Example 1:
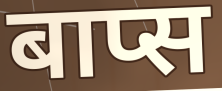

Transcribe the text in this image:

बाप्स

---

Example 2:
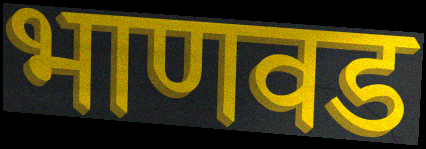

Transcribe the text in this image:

भाणवड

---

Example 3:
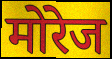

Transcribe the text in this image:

मोरेज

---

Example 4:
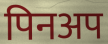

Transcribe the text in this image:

पिनअप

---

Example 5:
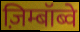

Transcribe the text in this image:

ज़िम्बॉब्वे